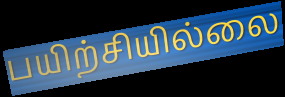
பயிற்சியில்லை